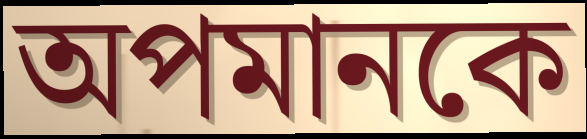
অপমানকে